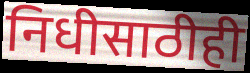
निधीसाठीही